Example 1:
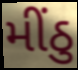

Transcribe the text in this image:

મીંઠુ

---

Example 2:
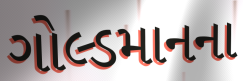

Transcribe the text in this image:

ગોલ્ડમાનના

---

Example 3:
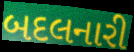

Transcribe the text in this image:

બદલનારી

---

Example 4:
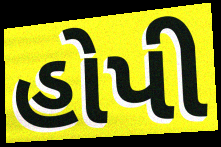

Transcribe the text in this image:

હોપી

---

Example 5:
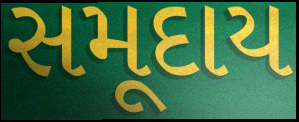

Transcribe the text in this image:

સમૂદાય